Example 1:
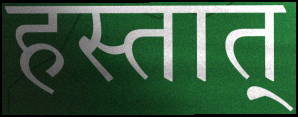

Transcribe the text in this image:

हस्तात्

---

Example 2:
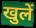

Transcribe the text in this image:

खुलें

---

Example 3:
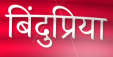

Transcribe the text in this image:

बिंदुप्रिया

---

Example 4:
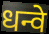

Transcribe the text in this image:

धन्वे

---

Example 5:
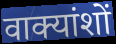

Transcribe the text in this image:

वाक्यांशों